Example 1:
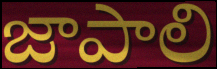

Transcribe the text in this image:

జాపాలి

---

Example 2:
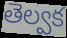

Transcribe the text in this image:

తెల్వక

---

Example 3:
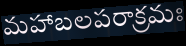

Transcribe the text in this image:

మహాబలపరాక్రమః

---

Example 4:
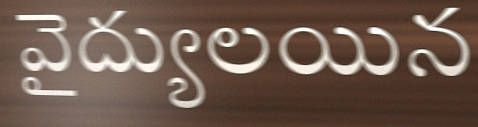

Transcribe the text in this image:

వైద్యులయిన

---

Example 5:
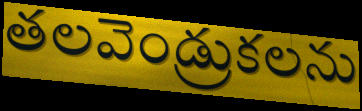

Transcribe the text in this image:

తలవెండ్రుకలను